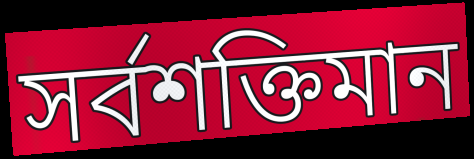
সর্বশক্তিমান